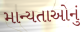
માન્યતાઓનું